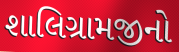
શાલિગ્રામજીનો